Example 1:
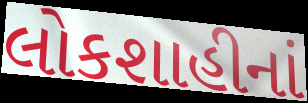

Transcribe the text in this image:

લોકશાહીનાં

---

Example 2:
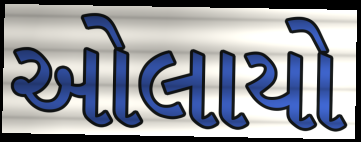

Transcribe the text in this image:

ઓલાયો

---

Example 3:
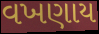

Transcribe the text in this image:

વખણાય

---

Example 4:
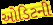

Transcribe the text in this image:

ઓડિટની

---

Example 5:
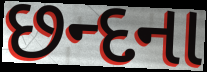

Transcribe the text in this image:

છન્દના